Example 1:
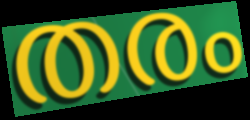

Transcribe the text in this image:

തരം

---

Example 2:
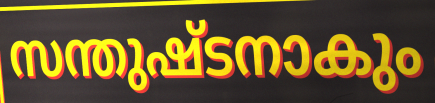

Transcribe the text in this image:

സന്തുഷ്ടനാകും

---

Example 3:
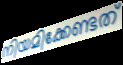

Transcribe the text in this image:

നിയമിക്കേണ്ടത്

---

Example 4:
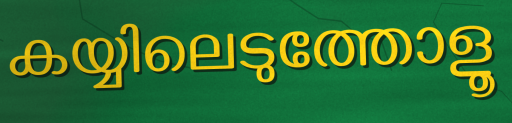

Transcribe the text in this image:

കയ്യിലെടുത്തോളൂ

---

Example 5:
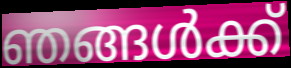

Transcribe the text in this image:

ഞങ്ങൾക്ക്